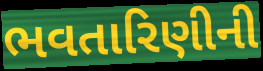
ભવતારિણીની